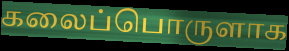
கலைப்பொருளாக